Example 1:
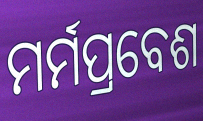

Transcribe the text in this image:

ମର୍ମପ୍ରବେଶ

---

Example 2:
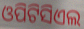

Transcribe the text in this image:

ଓପିଟିସିଏଲ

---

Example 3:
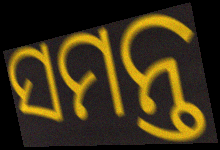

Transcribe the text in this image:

ସମନ୍ତ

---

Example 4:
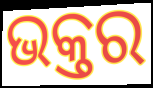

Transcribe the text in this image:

ଭକ୍ତର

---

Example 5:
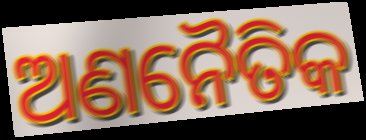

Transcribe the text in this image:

ଅଣନୈତିକ